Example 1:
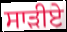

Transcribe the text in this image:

ਸਾੜੀਏ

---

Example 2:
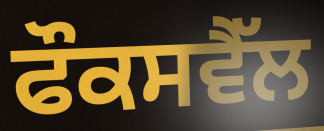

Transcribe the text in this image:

ਫੌਕਸਵੈੱਲ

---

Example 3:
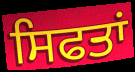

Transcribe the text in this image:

ਸਿਫਤਾਂ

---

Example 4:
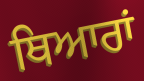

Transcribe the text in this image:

ਥਿਆਰਾਂ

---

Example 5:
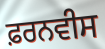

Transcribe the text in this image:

ਫ਼ਰਨਵੀਸ